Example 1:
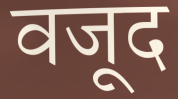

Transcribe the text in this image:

वजूद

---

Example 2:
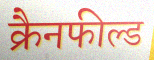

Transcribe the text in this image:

क्रैनफील्ड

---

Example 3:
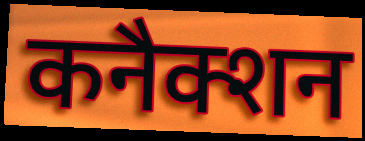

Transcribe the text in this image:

कनैक्शन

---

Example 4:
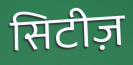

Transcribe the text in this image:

सिटीज़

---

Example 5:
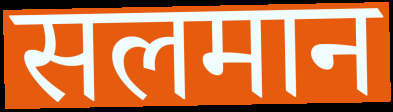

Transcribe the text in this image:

सलमान